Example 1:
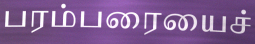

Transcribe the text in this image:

பரம்பரையைச்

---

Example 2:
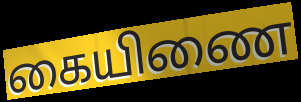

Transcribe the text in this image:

கையிணை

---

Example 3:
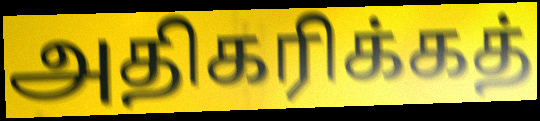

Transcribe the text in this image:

அதிகரிக்கத்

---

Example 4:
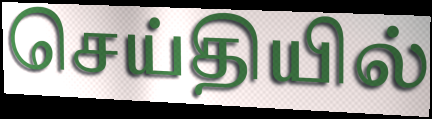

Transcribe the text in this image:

செய்தியில்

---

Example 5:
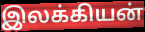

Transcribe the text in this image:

இலக்கியன்